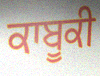
ਕਾਬੂਕੀ